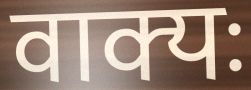
वाक्यः